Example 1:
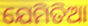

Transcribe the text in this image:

ଯେମିତିଆ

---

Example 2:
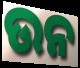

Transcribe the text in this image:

ଉନ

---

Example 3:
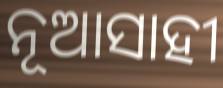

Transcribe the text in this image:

ନୂଆସାହୀ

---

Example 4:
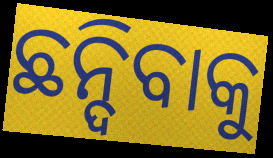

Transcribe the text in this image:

ଛନ୍ଦିବାକୁ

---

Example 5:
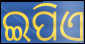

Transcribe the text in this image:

ଇପିଏ